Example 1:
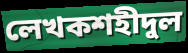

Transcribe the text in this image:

লেখকশহীদুল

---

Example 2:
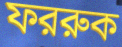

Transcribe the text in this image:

ফররুক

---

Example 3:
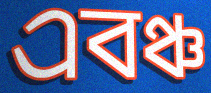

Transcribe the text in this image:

এবঞ্চ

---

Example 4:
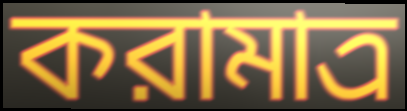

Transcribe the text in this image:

করামাত্র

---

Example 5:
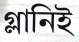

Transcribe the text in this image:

গ্লানিই